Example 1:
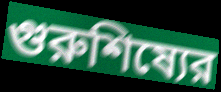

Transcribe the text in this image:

গুরুশিষ্যের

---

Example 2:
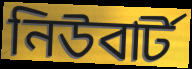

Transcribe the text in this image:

নিউবার্ট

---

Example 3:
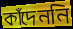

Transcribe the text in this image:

কাঁদেননি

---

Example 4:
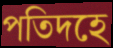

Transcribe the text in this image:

পতিদহে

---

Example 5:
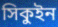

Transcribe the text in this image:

সিকুইন